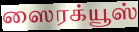
ஸைரக்யூஸ்